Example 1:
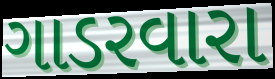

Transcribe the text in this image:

ગાડરવારા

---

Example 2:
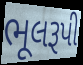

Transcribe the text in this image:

ભૂલરૂપી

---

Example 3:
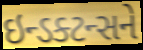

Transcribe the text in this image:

ઇન્ડક્ટન્સને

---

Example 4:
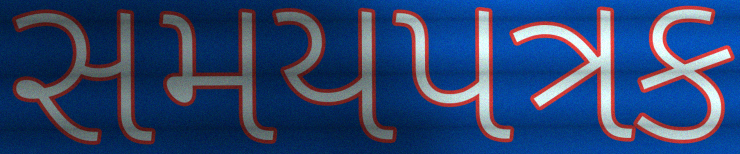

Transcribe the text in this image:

સમયપત્રક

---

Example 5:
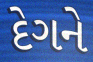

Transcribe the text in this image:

દેગને